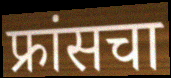
फ्रांसचा